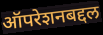
ऑपरेशनबद्दल